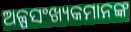
ଅଳ୍ପସଂଖ୍ୟକମାନଙ୍କ